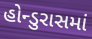
હોન્ડુરાસમાં